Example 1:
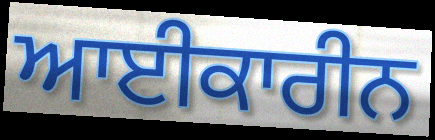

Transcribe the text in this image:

ਆਈਕਾਰੀਨ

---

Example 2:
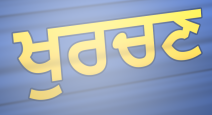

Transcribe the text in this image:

ਖੁਰਚਣ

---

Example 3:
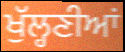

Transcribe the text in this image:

ਖੁੱਲ੍ਹਣੀਆਂ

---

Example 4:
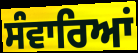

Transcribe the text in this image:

ਸੰਵਾਰਿਆਂ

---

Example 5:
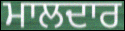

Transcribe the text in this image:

ਮਾਲਦਾਰ